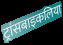
ट्रांसबाइकलिया